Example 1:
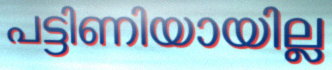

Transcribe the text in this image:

പട്ടിണിയായില്ല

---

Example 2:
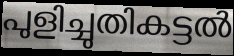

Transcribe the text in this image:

പുളിച്ചുതികട്ടൽ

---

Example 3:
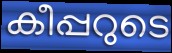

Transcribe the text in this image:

കീപ്പറുടെ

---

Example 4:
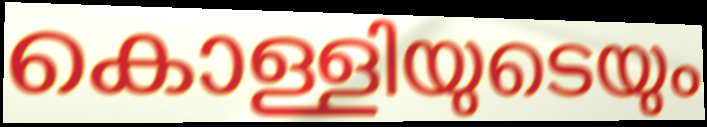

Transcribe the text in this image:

കൊള്ളിയുടെയും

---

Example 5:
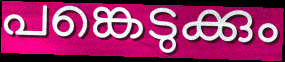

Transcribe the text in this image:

പങ്കെടുക്കും